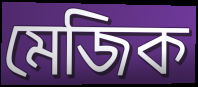
মেজিক